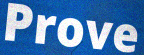
Prove